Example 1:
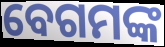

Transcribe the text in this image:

ବେଗମଙ୍କ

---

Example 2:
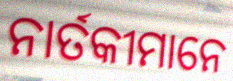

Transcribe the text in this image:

ନାର୍ତକୀମାନେ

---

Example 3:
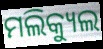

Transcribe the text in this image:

ମଲିକ୍ୟୁଲ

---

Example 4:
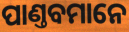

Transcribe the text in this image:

ପାଣ୍ତବମାନେ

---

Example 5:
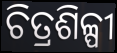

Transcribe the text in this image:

ଚିତ୍ରଶିଳ୍ପୀ